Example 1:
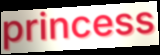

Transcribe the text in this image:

princess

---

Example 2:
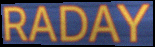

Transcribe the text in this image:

RADAY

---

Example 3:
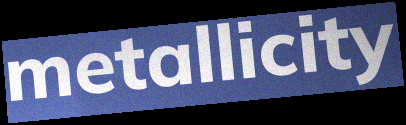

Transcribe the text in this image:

metallicity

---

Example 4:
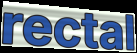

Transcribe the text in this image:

rectal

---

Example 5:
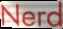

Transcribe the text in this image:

Nerd